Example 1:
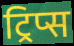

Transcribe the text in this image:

ट्रिप्स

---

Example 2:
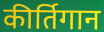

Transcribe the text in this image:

कीर्तिगान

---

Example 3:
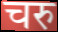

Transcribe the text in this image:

चरु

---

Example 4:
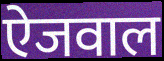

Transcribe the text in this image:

ऐजवाल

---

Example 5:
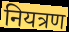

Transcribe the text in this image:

नियत्रण